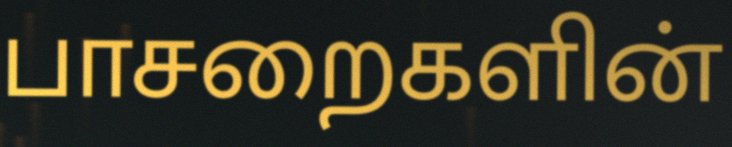
பாசறைகளின்